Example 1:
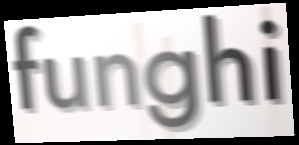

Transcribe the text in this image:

funghi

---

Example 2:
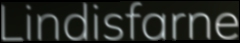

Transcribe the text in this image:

Lindisfarne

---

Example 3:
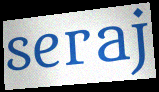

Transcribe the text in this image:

seraj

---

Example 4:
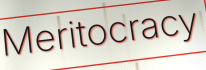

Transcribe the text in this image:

Meritocracy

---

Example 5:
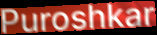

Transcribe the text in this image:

Puroshkar